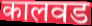
कालवड